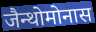
जैन्थोमोनास